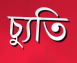
চ্যুতি